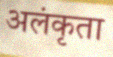
अलंकृता